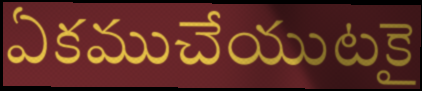
ఏకముచేయుటకై